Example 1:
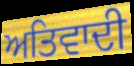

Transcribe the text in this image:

ਅਤਿਵਾਦੀ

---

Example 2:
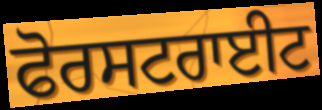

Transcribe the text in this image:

ਫੋਰਸਟਰਾਈਟ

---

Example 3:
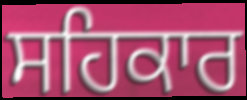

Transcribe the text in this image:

ਸਹਿਕਾਰ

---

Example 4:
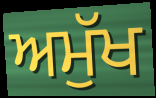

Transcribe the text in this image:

ਅਮੁੱਖ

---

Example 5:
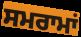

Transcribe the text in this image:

ਸਮਰਾਮਾਂ